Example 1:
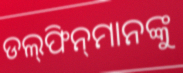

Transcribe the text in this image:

ଡଲ୍‍ଫିନ୍‍ମାନଙ୍କୁ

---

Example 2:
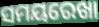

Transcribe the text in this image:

ସମୟରେଖା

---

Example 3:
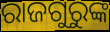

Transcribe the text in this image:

ରାଜଗୁରୁଙ୍କ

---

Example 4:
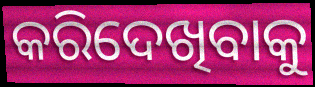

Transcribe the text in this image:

କରିଦେଖିବାକୁ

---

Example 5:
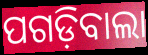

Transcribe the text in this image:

ପଗଡ଼ିବାଲା